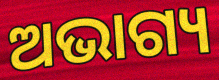
ଅଭାଗ୍ୟ